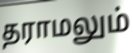
தராமலும்